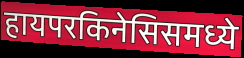
हायपरकिनेसिसमध्ये